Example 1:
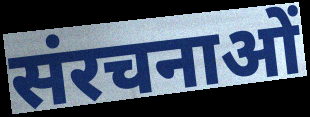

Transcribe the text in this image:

संरचनाओं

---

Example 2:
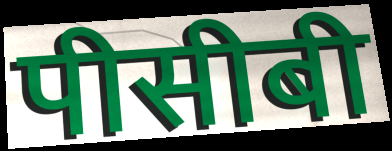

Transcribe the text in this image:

पीसीबी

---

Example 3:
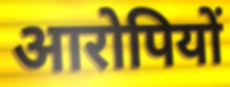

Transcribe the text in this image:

आरोपियों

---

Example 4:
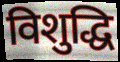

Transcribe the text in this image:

विशुद्धि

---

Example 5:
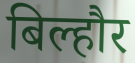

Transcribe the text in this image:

बिल्हौर